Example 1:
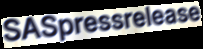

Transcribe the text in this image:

SASpressrelease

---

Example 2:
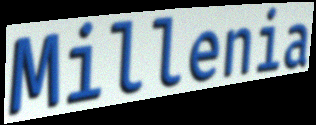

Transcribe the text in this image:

Millenia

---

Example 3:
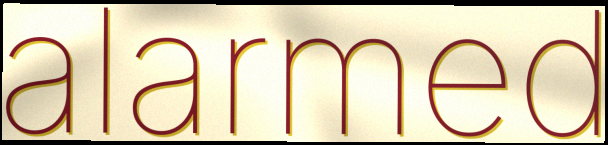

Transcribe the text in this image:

alarmed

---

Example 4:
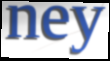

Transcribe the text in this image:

ney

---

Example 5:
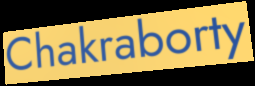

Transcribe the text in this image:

Chakraborty